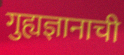
गुह्यज्ञानाची